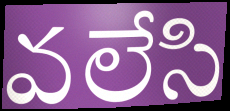
వలేసి